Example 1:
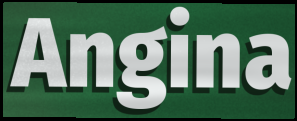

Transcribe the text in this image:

Angina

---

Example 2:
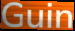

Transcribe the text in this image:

Guin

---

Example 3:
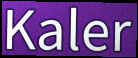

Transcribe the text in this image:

Kaler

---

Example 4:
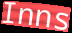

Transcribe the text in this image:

Inns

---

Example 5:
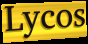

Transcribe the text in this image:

Lycos